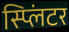
स्प्लिंटर